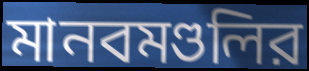
মানবমণ্ডলির